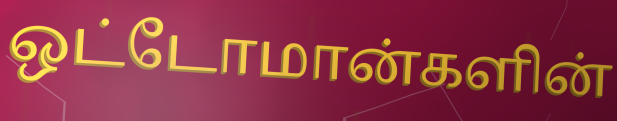
ஒட்டோமான்களின்